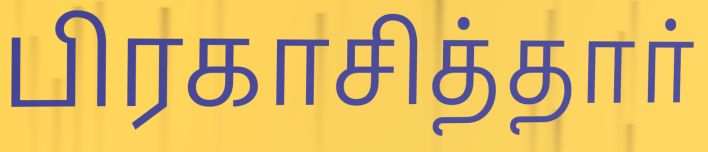
பிரகாசித்தார்